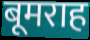
बूमराह